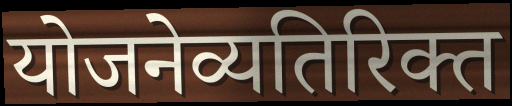
योजनेव्यतिरिक्त